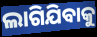
ଲାଗିଯିବାକୁ